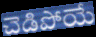
చెడిపోయే